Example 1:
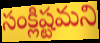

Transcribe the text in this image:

సంక్లిష్టమని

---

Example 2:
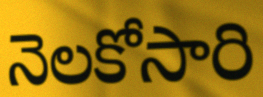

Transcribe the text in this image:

నెలకోసారి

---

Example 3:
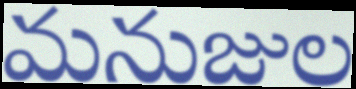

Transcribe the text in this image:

మనుజుల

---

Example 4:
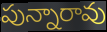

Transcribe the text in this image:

పున్నారావు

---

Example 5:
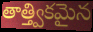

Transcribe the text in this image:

తాత్త్వికమైన